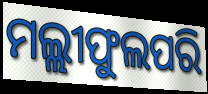
ମଲ୍ଲୀଫୁଲପରି